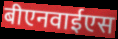
बीएनवाईएस